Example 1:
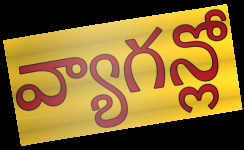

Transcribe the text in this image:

వ్యాగన్లో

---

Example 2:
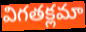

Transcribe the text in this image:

విగతక్లమా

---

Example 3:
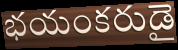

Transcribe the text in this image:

భయంకరుడై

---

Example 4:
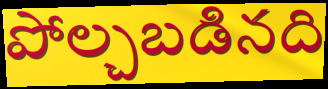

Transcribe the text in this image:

పోల్చబడినది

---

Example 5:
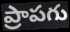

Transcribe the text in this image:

ప్రాపగు